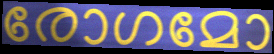
രോഗമോ